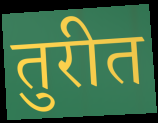
तुरीत